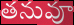
తనువూ